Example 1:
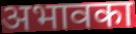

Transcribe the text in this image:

अभावका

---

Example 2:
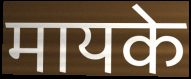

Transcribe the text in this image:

मायके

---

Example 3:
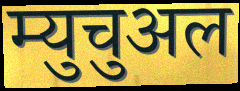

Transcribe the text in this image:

म्युचुअल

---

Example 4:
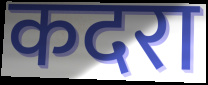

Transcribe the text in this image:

कदरा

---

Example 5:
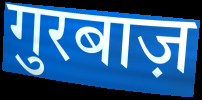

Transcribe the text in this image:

गुरबाज़